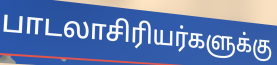
பாடலாசிரியர்களுக்கு